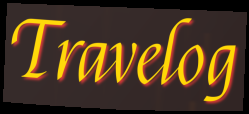
Travelog